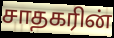
சாதகரின்